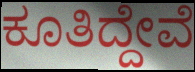
ಕೂತಿದ್ದೇವೆ